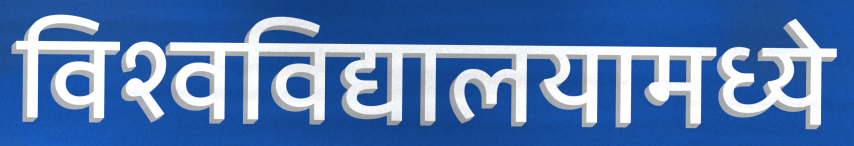
विश्वविद्यालयामध्ये